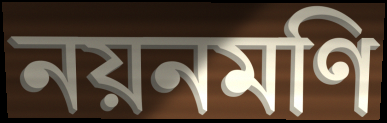
নয়নমণি